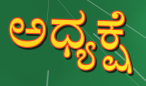
ಅಧ್ಯಕ್ಷೆ